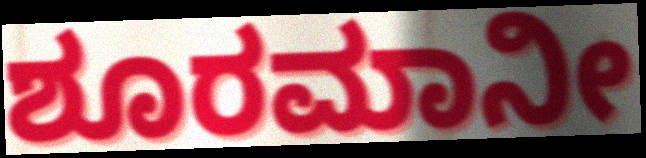
ಶೂರಮಾನೀ